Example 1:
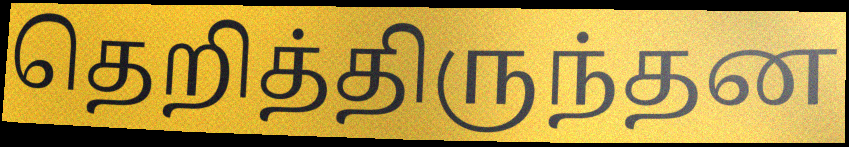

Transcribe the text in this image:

தெறித்திருந்தன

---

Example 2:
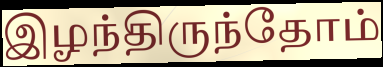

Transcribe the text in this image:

இழந்திருந்தோம்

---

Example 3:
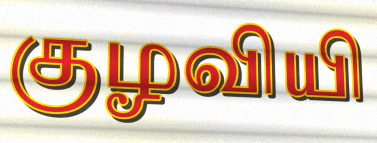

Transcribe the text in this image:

குழவியி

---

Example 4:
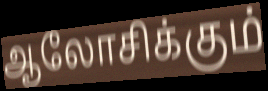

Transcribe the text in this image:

ஆலோசிக்கும்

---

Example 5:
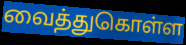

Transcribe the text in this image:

வைத்துகொள்ள